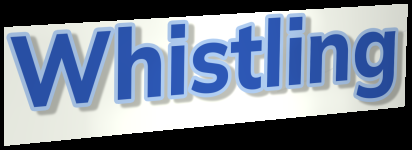
Whistling